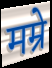
मम्रे